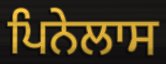
ਪਿਨੇਲਾਸ